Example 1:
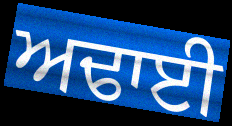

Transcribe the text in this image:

ਅਢਾਈ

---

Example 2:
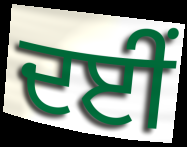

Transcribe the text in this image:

ਦਈਂ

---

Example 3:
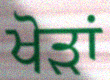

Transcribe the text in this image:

ਖੋੜਾਂ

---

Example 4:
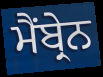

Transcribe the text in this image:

ਮੈਂਬ੍ਰੇਨ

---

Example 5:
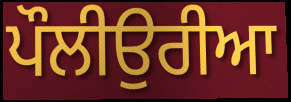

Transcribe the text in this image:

ਪੌਲੀਉਰੀਆ